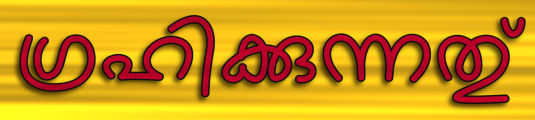
ഗ്രഹിക്കുന്നതു്